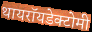
थायरॉयडेक्टोमी